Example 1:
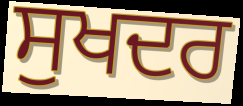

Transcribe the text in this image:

ਸੁਖਦਰ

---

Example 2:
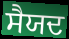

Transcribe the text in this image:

ਸੈਯਦ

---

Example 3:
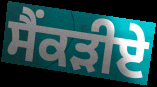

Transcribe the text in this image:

ਸੈਂਕੜੀਏ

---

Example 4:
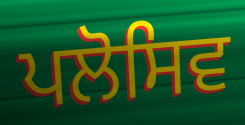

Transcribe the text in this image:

ਪਲੋਸਿਵ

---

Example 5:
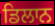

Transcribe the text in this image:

ਡਿਲਾਨ